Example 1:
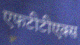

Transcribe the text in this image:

एफटीटीएक्स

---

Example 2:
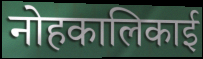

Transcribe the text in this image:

नोहकालिकाई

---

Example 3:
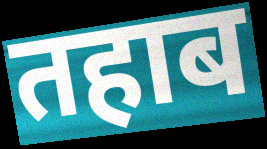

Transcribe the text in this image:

तहाब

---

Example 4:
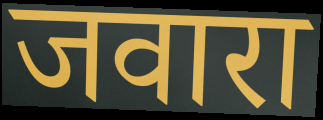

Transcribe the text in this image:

जवारा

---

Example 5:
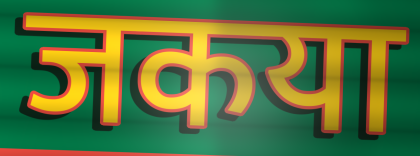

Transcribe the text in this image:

जकया